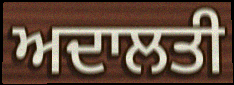
ਅਦਾਲਤੀ